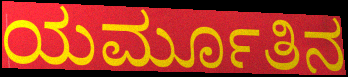
ಯರ್ಮೂತಿನ